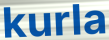
kurla